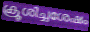
ക്രൂശിച്ചശേഷം